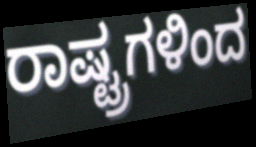
ರಾಷ್ಟ್ರಗಳಿಂದ